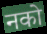
नको